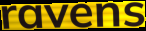
ravens